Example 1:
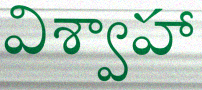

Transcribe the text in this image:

విశ్వాహా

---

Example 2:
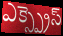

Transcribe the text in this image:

ఎక్స్ప్రెస్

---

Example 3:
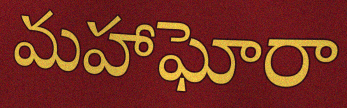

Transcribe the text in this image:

మహాఘోరా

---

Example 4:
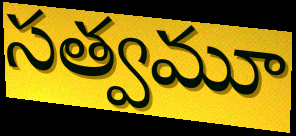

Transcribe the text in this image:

సత్వమూ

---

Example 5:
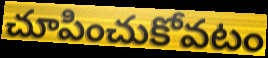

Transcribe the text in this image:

చూపించుకోవటం